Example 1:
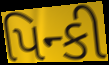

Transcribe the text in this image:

પિન્કી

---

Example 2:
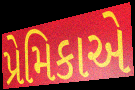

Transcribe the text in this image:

પ્રેમિકાએ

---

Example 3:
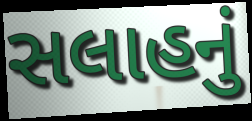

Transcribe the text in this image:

સલાહનું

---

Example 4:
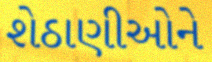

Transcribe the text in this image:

શેઠાણીઓને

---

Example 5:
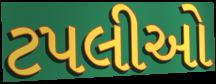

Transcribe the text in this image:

ટપલીઓ